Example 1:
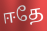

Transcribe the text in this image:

ஈதே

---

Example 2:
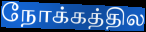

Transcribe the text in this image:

நோக்கத்தில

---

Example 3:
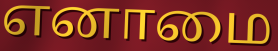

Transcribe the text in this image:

எனாமை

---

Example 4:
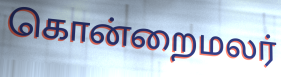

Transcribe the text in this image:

கொன்றைமலர்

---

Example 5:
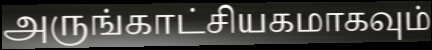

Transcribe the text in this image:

அருங்காட்சியகமாகவும்